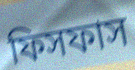
ফিসফাস